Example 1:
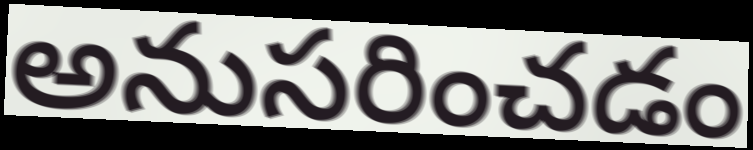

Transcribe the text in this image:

అనుసరించడం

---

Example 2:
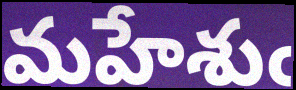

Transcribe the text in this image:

మహేశుఁ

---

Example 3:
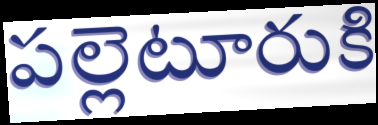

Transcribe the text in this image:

పల్లెటూరుకి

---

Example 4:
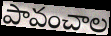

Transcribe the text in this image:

పావంచాల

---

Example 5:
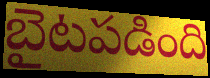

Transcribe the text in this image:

బైటపడింది